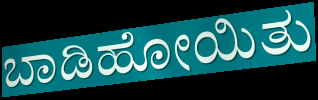
ಬಾಡಿಹೋಯಿತು